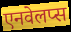
एनवेलप्स